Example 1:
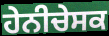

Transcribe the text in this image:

ਹੇਨੀਚੇਸਕ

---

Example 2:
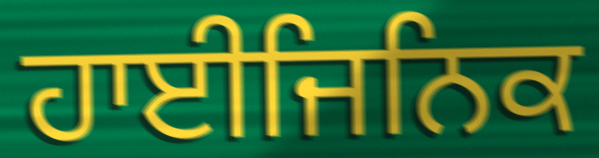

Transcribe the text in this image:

ਹਾਈਜਿਨਿਕ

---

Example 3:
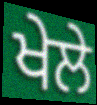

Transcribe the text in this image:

ਖੇਲੇ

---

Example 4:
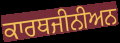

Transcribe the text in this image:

ਕਾਰਥਜੀਨੀਅਨ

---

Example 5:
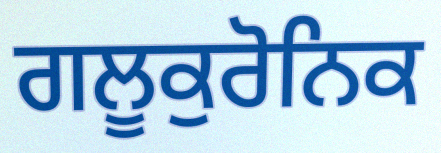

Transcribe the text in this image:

ਗਲੂਕੁਰੋਨਿਕ